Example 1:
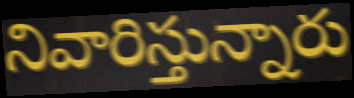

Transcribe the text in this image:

నివారిస్తున్నారు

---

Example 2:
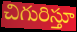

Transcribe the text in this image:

చిగురిస్తూ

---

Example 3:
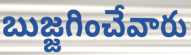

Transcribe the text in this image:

బుజ్జగించేవారు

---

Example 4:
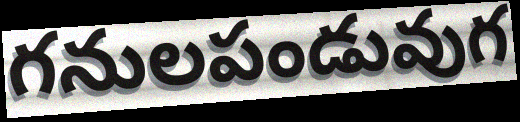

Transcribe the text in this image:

గనులపండువుగ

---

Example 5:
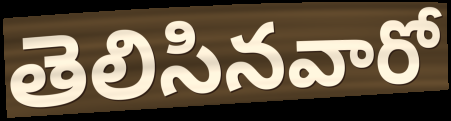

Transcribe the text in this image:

తెలిసినవారో